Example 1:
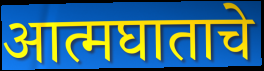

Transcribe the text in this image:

आत्मघाताचे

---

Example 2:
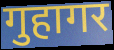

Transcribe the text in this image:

गुहागर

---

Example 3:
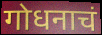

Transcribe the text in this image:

गोधनाचं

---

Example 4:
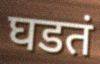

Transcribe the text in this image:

घडतं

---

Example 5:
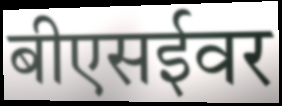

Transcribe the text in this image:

बीएसईवर